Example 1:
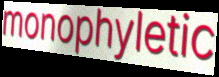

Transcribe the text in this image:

monophyletic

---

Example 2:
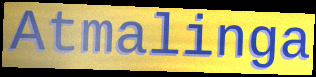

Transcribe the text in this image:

Atmalinga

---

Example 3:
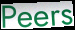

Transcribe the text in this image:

Peers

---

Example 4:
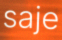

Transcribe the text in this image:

saje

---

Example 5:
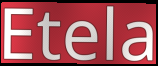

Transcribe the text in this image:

Etela